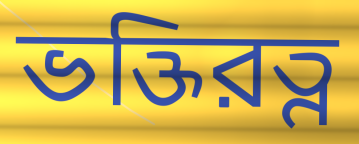
ভক্তিরত্ন